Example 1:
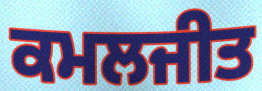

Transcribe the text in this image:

ਕਮਲਜੀਤ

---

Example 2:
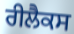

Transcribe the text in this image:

ਰੀਲੈਕਸ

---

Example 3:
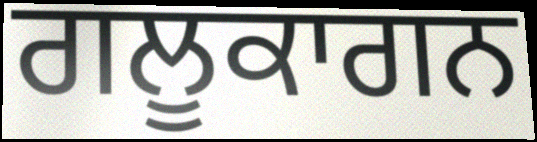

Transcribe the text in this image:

ਗਲੂਕਾਗਨ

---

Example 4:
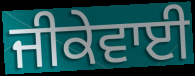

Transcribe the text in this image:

ਜੀਕੇਵਾਈ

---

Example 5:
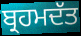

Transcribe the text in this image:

ਬ੍ਰਹਮਦੱਤ